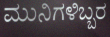
ಮುನಿಗಳಿಬ್ಬರ